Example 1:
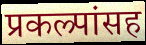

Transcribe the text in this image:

प्रकल्पांसह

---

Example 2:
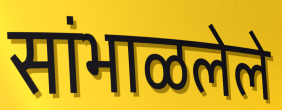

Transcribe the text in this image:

सांभाळलेले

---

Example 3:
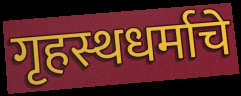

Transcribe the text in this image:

गृहस्थधर्माचे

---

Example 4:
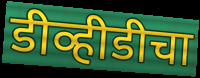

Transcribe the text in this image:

डीव्हीडीचा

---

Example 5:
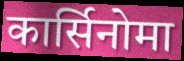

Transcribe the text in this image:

कार्सिनोमा